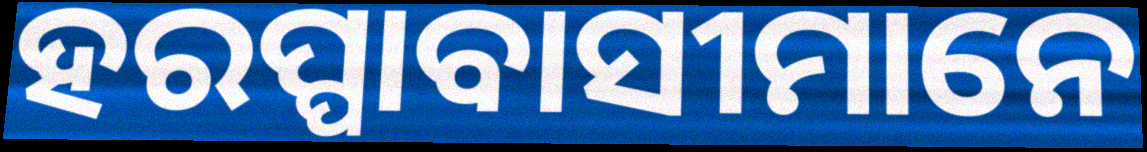
ହରପ୍ପାବାସୀମାନେ